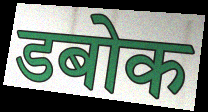
डबोक